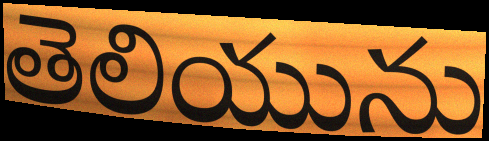
తెలియును